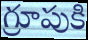
గ్రూపుకి